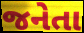
જનેતા